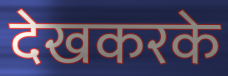
देखकरके